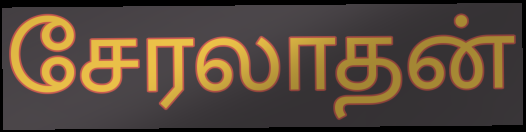
சேரலாதன்